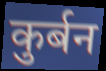
कुर्बन